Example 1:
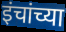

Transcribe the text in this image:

इंचांच्या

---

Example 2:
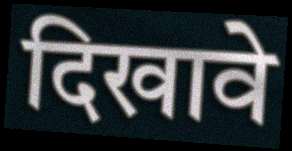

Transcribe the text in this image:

दिखावे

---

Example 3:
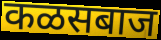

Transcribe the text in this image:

कळसबाज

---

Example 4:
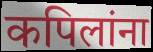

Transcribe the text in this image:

कपिलांना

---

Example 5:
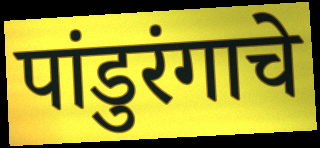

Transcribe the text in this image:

पांडुरंगाचे